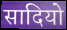
सादियो